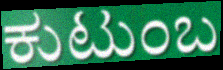
ಕುಟುಂಬ